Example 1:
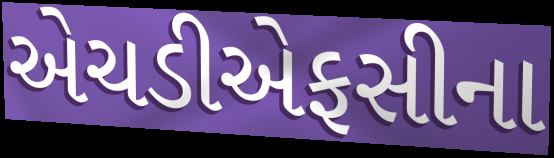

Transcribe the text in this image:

એચડીએફસીના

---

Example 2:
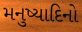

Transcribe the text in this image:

મનુષ્યાદિનો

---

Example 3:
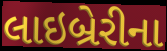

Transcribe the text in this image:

લાઇબ્રેરીના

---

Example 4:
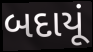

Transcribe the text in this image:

બદાયૂં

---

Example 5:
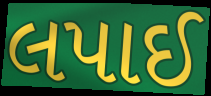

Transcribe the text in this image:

લપાઈ